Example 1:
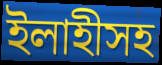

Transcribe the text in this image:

ইলাহীসহ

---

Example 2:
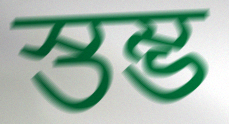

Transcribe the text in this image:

স্তম্ভ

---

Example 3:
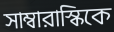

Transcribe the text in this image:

সাম্বারাস্কিকে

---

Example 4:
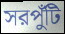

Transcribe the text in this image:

সরপুঁটি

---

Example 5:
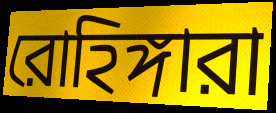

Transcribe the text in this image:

রোহিঙ্গারা